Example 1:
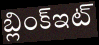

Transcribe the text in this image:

బ్లింక్ఇట్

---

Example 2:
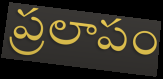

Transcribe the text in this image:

ప్రలాపం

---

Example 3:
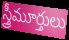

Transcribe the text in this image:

స్త్రీమూర్తులు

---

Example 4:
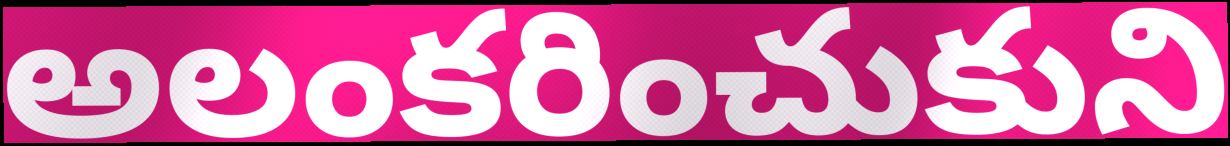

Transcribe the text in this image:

అలంకరించుకుని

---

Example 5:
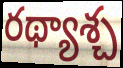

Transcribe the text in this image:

రథ్యాశ్చ